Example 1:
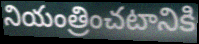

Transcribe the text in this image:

నియంత్రించటానికి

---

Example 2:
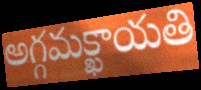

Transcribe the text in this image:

అగ్గమక్ఖాయతి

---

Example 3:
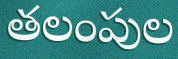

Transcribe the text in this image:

తలంపుల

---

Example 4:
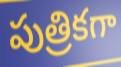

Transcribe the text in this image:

పుత్రికగా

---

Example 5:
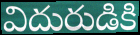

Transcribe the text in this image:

విదురుడికి